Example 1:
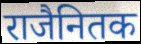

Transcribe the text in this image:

राजैनितक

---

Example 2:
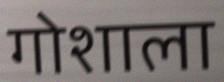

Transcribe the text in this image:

गोशाला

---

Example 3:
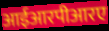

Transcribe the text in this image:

आईआरपीआरए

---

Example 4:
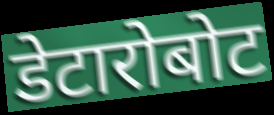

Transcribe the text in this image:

डेटारोबोट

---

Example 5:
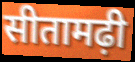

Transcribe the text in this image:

सीतामढ़ी